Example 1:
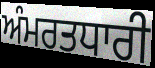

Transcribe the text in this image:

ਅੰਮਰਤਧਾਰੀ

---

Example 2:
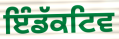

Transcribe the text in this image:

ਇੰਡੱਕਟਿਵ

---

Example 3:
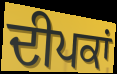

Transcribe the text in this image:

ਦੀਪਕਾਂ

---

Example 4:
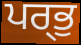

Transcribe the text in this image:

ਪਰ੍ਭੁ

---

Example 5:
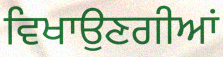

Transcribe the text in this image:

ਵਿਖਾਉਣਗੀਆਂ